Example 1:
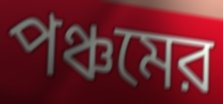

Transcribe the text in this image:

পঞ্চমের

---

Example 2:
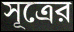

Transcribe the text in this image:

সূত্রের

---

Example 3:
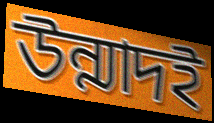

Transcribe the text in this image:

উন্মাদই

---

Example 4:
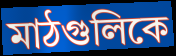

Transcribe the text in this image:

মাঠগুলিকে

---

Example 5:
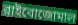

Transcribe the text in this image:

রাইবোজোমাল